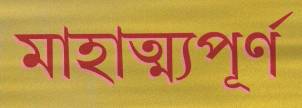
মাহাত্ম্যপূর্ণ